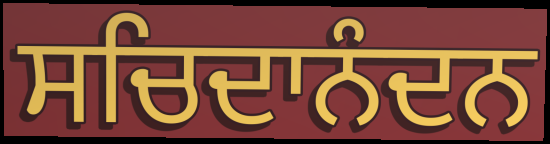
ਸਚਿਦਾਨੰਦਨ